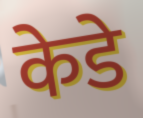
केडे